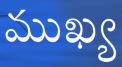
ముఖ్య